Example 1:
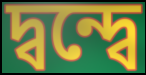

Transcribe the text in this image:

দ্বন্দ্বে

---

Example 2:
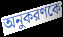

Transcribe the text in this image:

অনুকরণকে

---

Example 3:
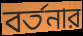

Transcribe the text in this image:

বর্তনার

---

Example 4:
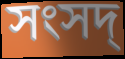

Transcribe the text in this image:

সংসদ্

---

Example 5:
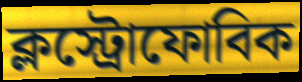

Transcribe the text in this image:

ক্লস্ট্রোফোবিক